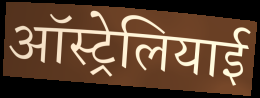
ऑस्ट्रेलियाई